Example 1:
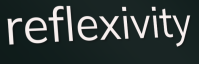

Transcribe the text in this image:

reflexivity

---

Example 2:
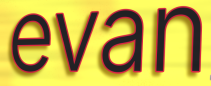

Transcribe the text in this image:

evan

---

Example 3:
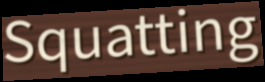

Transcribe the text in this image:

Squatting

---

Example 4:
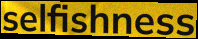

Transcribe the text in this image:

selfishness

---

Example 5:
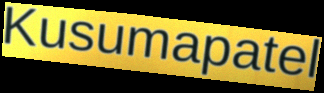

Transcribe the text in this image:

Kusumapatel